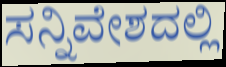
ಸನ್ನಿವೇಶದಲ್ಲಿ